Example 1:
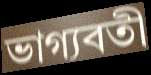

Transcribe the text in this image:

ভাগ্যবতী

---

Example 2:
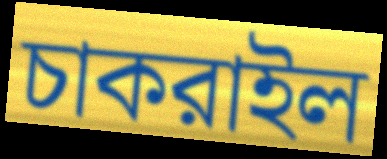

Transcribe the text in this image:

চাকরাইল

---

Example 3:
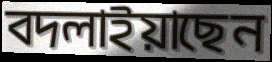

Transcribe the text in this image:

বদলাইয়াছেন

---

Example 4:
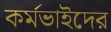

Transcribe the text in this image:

কর্মভাইদের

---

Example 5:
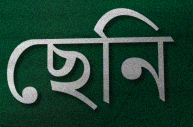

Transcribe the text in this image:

ছেনি